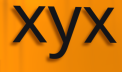
xyx